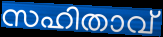
സഹിതാവ്